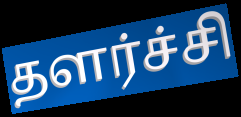
தளர்ச்சி